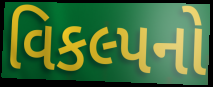
વિકલ્પનો